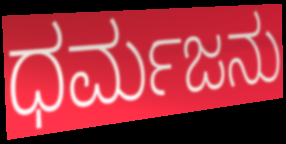
ಧರ್ಮಜನು